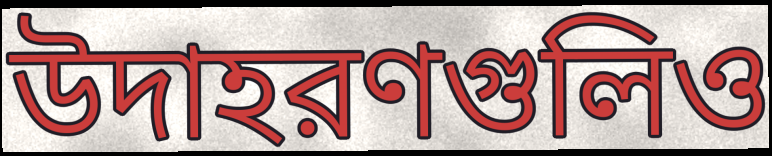
উদাহরণগুলিও